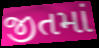
જીતમાં